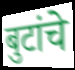
बुटांचे